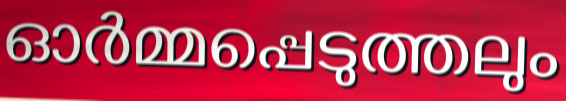
ഓർമ്മപ്പെടുത്തലും